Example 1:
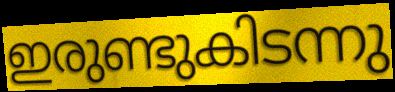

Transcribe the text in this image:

ഇരുണ്ടുകിടന്നു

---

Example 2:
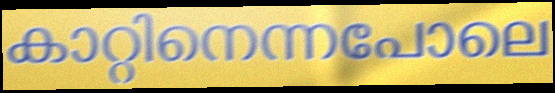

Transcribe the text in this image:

കാറ്റിനെന്നപോലെ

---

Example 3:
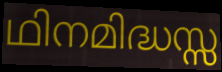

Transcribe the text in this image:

ഥിനമിദ്ധസ്സ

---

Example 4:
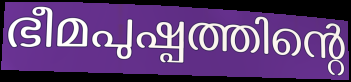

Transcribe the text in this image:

ഭീമപുഷ്പത്തിന്റെ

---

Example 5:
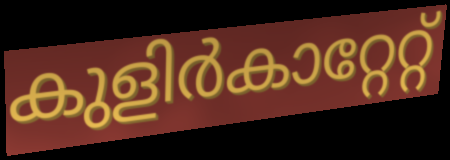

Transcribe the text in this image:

കുളിർകാറ്റേറ്റ്